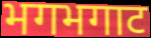
भगभगाट